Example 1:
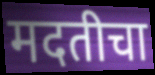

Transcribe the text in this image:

मदतीचा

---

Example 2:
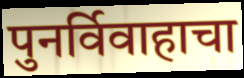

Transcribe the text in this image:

पुनर्विवाहाचा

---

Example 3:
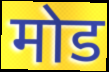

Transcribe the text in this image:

मोड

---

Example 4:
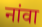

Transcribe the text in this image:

नांवा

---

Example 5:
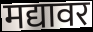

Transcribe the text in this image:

मद्यावर